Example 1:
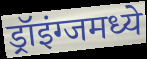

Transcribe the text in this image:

ड्रॉइंग्जमध्ये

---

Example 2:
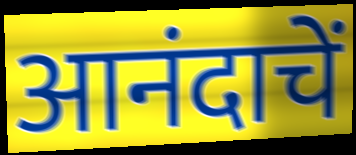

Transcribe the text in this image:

आनंदाचें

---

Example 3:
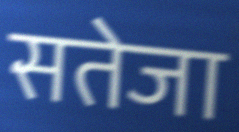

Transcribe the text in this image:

सतेजा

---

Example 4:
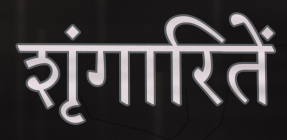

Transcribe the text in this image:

शृंगारितें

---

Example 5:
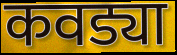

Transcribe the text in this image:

कवड्या